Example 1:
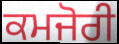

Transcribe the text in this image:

ਕਮਜੋਰੀ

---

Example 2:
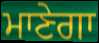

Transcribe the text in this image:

ਮਾਣੇਗਾ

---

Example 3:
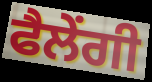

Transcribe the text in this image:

ਫੈਲੇਂਗੀ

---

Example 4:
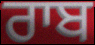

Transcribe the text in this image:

ਰਾਬ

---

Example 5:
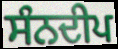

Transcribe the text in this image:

ਸੰਨਦੀਪ